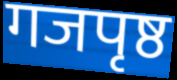
गजपृष्ठ